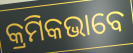
କ୍ରମିକଭାବେ